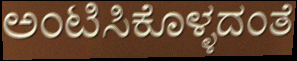
ಅಂಟಿಸಿಕೊಳ್ಳದಂತೆ